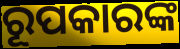
ରୂପକାରଙ୍କ